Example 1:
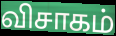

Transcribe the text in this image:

விசாகம்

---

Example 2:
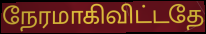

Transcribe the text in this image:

நேரமாகிவிட்டதே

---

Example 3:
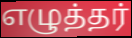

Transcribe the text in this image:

எழுத்தர்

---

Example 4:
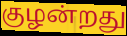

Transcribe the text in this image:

குழன்றது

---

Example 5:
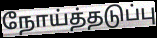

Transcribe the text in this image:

நோய்த்தடுப்பு